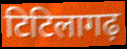
टिटिलागढ़